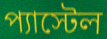
প্যাস্টেল